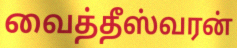
வைத்தீஸ்வரன்